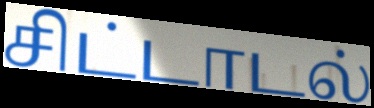
சிட்டாடல்